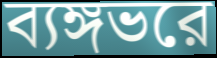
ব্যঙ্গভরে